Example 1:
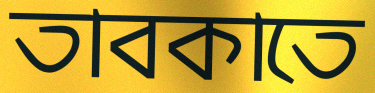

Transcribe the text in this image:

তাবকাতে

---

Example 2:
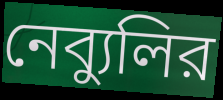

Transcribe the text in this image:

নেব্যুলির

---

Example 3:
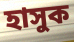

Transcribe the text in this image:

হাসুক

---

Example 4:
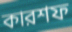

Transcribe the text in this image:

কারশফ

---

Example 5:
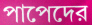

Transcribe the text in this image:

পাপেদের